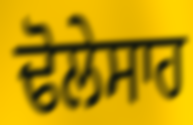
ਢੋਲੇਸਾਹ